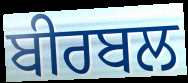
ਬੀਰਬਲ